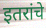
इतरांचे